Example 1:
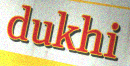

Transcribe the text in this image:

dukhi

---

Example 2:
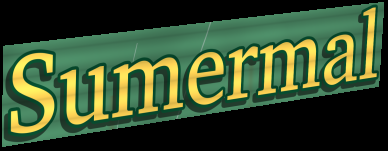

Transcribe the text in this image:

Sumermal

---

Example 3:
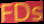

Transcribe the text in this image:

FDs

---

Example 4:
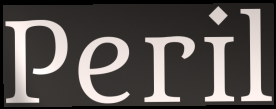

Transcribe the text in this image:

Peril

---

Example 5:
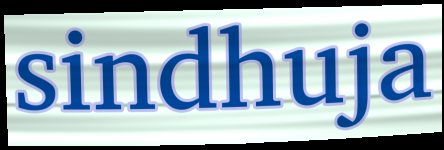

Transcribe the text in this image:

sindhuja